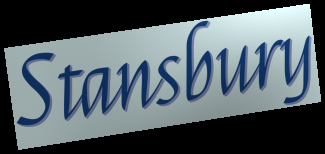
Stansbury